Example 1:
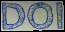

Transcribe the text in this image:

DOI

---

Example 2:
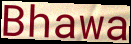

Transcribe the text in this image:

Bhawa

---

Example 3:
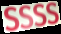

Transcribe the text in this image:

SSSS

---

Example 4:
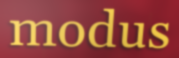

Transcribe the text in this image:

modus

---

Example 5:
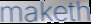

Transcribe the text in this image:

maketh